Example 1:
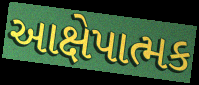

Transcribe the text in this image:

આક્ષેપાત્મક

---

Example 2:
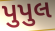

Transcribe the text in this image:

પુપુલ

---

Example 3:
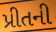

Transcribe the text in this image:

પ્રીતની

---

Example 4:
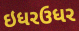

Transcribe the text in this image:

ઇધરઉધર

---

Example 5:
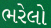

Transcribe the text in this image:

ભરેલો